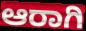
ಆರಾಗಿ